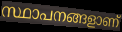
സ്ഥാപനങ്ങളാണ്